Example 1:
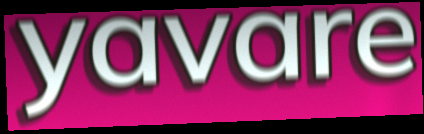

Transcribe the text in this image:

yavare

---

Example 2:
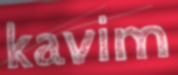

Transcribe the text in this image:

kavim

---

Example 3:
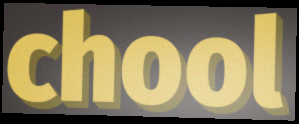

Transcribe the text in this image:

chool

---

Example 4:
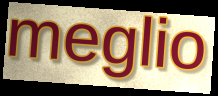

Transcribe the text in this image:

meglio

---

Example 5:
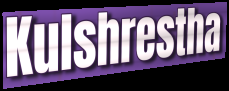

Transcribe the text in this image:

Kulshrestha